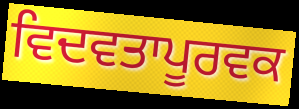
ਵਿਦਵਤਾਪੂਰਵਕ